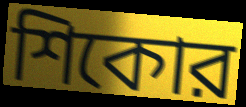
শিকোর